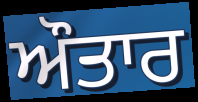
ਔਤਾਰ